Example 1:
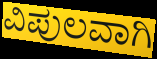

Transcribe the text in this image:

ವಿಪುಲವಾಗಿ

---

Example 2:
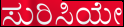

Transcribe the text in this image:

ಸುರಿಸಿಯೇ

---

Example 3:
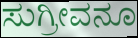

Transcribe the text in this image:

ಸುಗ್ರೀವನೂ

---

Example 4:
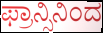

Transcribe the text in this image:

ಫ್ರಾನ್ಸಿನಿಂದ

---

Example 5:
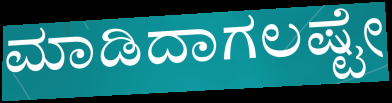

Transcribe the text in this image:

ಮಾಡಿದಾಗಲಷ್ಟೇ